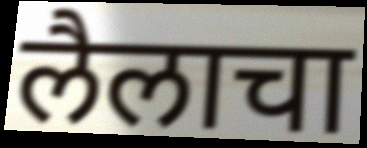
लैलाचा